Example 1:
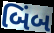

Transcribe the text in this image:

બિંબ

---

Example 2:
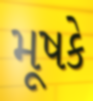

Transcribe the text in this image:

મૂષકે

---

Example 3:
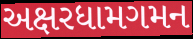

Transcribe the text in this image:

અક્ષરધામગમન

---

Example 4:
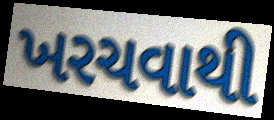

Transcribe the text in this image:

ખરચવાથી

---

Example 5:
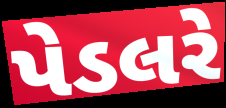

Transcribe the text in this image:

પેડલરે